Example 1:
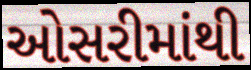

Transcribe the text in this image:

ઓસરીમાંથી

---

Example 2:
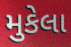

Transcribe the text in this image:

મુકેલા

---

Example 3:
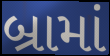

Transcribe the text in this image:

બ્રામાં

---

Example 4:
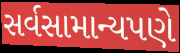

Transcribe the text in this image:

સર્વસામાન્યપણે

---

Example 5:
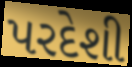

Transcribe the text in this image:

પરદેશી